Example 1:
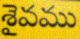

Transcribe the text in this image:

శైవము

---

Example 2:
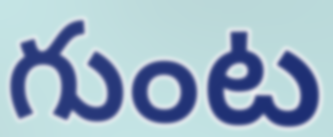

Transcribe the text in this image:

గుంట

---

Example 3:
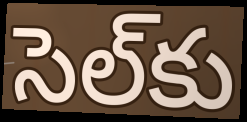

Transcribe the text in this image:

సెల్‌కు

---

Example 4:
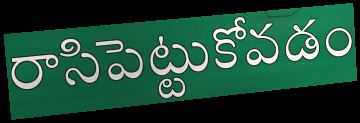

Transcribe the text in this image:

రాసిపెట్టుకోవడం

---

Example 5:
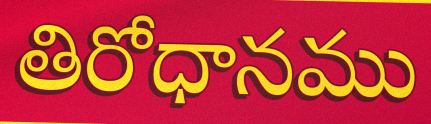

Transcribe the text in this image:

తిరోధానము